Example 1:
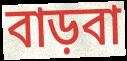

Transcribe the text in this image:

বাড়বা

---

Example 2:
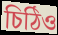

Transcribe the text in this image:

চিঠিও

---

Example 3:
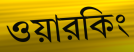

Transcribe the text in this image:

ওয়ারকিং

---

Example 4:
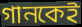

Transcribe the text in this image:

গানকেই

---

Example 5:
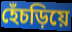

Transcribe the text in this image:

হেঁচড়িয়ে